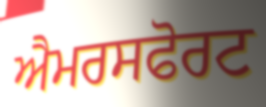
ਐਮਰਸਫੋਰਟ